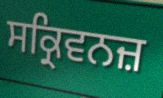
ਸਕ੍ਰਿਵਨਜ਼